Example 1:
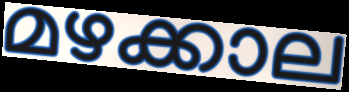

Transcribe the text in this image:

മഴക്കാല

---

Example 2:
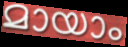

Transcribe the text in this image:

മായാം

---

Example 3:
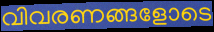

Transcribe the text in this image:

വിവരണങ്ങളോടെ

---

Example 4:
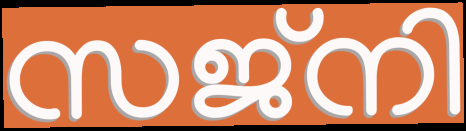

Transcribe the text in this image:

സജ്നി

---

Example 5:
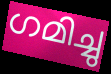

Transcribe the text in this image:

ഗമിച്ചു